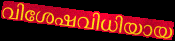
വിശേഷവിധിയായ